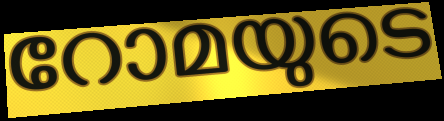
റോമയുടെ